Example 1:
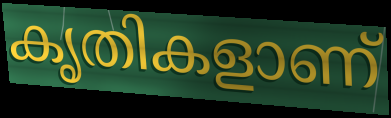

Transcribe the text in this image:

കൃതികളാണ്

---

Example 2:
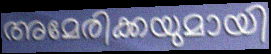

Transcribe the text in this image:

അമേരിക്കയുമായി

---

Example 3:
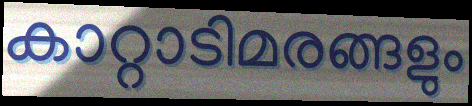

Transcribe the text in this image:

കാറ്റാടിമരങ്ങളും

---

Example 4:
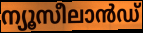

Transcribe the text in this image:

ന്യൂസീലാൻഡ്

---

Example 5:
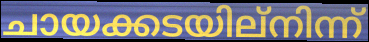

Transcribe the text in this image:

ചായക്കടയില്നിന്ന്